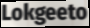
Lokgeeto